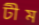
টীম